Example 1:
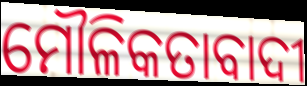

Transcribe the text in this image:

ମୌଳିକତାବାଦୀ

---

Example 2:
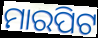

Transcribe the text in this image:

ମାରପିଟ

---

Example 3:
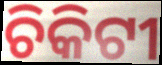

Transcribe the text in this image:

ଚିକିଟୀ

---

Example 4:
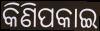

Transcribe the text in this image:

କିଣିପକାଇ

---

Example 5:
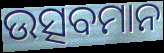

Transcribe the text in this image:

ଉତ୍ସବମାନ